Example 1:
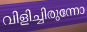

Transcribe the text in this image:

വിളിച്ചിരുന്നോ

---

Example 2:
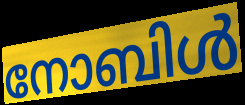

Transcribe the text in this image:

നോബിൾ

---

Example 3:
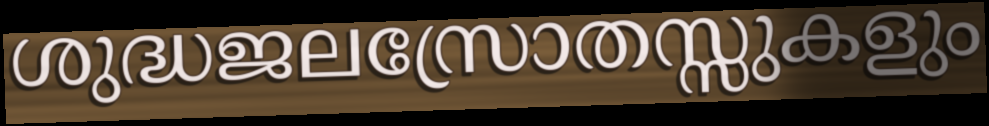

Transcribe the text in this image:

ശുദ്ധജലസ്രോതസ്സുകളും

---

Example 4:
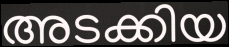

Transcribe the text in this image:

അടക്കിയ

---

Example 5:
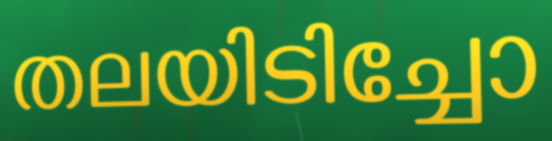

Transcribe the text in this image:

തലയിടിച്ചോ